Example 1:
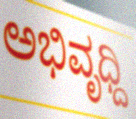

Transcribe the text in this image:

ಅಭಿವೃಧ್ದಿ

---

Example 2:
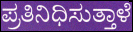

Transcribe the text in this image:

ಪ್ರತಿನಿಧಿಸುತ್ತಾಳೆ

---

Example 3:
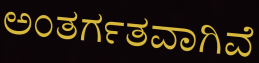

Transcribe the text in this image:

ಅಂತರ್ಗತವಾಗಿವೆ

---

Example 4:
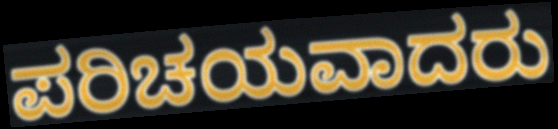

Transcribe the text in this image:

ಪರಿಚಯವಾದರು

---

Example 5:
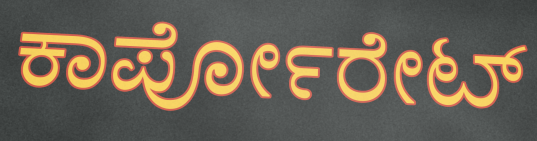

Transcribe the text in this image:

ಕಾರ್ಪೋರೇಟ್